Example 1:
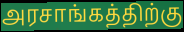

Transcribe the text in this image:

அரசாங்கத்திற்கு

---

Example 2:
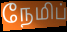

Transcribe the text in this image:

நேமிப்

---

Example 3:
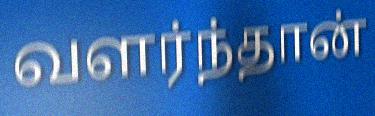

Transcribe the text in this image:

வளர்ந்தான்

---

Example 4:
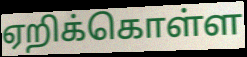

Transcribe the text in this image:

ஏறிக்கொள்ள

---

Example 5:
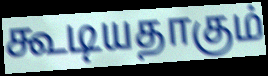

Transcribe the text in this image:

கூடியதாகும்